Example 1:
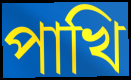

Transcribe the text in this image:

পাখি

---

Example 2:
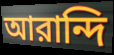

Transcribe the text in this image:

আরান্দি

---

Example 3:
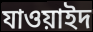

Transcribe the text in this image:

যাওয়াইদ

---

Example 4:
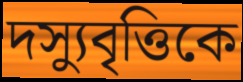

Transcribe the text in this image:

দস্যুবৃত্তিকে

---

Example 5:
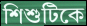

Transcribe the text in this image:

শিশুটিকে